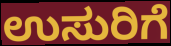
ಉಸುರಿಗೆ